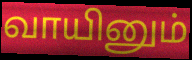
வாயினும்